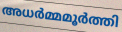
അധർമ്മമൂർത്തി